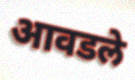
आवडले